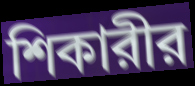
শিকারীর